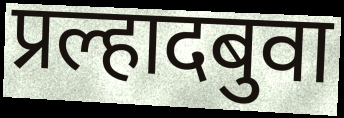
प्रल्हादबुवा